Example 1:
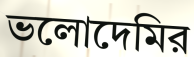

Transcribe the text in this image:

ভলোদেমির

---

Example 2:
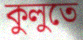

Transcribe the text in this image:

কুলুতে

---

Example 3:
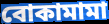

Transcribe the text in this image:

বোকামামা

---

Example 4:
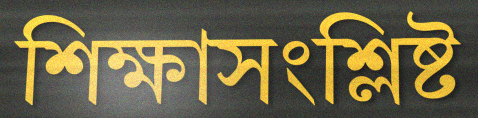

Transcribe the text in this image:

শিক্ষাসংশ্লিষ্ট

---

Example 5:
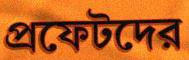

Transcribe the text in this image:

প্রফেটদের